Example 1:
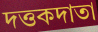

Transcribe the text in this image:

দত্তকদাতা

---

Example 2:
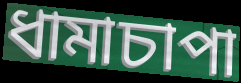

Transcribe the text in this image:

ধামাচাপা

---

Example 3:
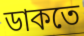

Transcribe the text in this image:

ডাকতে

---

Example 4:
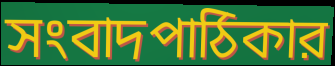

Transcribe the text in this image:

সংবাদপাঠিকার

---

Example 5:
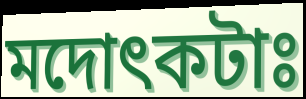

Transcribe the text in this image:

মদোৎকটাঃ